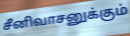
சீனிவாசனுக்கும்